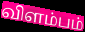
விளம்பம்